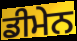
ਡੀਮੇਨ